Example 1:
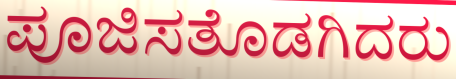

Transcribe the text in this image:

ಪೂಜಿಸತೊಡಗಿದರು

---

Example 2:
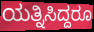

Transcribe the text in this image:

ಯತ್ನಿಸಿದ್ದರೂ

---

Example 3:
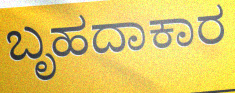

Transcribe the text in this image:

ಬೃಹದಾಕಾರ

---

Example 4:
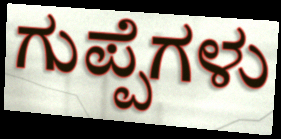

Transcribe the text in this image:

ಗುಪ್ಪೆಗಳು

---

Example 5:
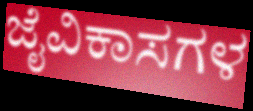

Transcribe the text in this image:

ಜೈವಿಕಾಸಗಳ